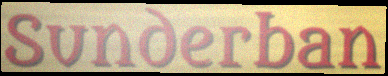
Sunderban